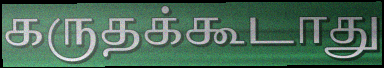
கருதக்கூடாது